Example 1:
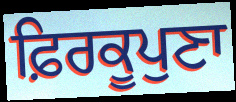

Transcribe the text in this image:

ਫ਼ਿਰਕੂਪੁਣਾ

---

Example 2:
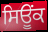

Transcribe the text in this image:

ਸਿਊਂਕ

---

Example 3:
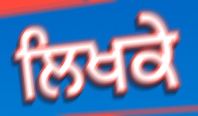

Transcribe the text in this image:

ਲਿਖਕੇ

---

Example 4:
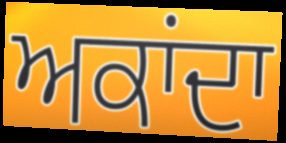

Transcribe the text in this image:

ਅਕਾਂਦਾ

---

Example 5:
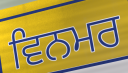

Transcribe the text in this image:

ਵਿਨਮਰ